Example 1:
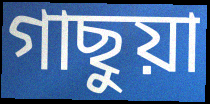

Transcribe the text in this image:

গাছুয়া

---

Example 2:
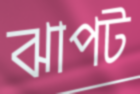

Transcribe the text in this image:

ঝাপট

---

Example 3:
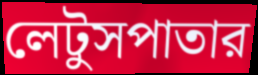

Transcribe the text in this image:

লেটুসপাতার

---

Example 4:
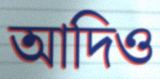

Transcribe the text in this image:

আদিও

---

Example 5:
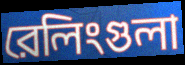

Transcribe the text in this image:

রেলিংগুলা